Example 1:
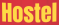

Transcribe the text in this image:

Hostel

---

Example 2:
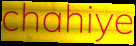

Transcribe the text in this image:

chahiye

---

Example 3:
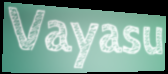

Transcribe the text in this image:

Vayasu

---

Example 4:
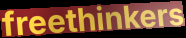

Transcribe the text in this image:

freethinkers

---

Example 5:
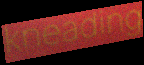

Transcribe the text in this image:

kneading